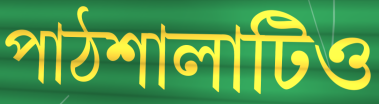
পাঠশালাটিও